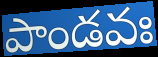
పాండవః